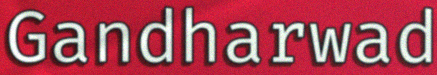
Gandharwad